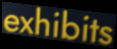
exhibits